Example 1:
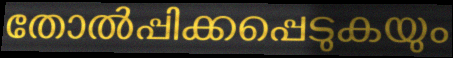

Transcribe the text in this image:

തോൽപ്പിക്കപ്പെടുകയും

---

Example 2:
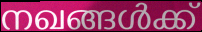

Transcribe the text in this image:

നഖങ്ങൾക്ക്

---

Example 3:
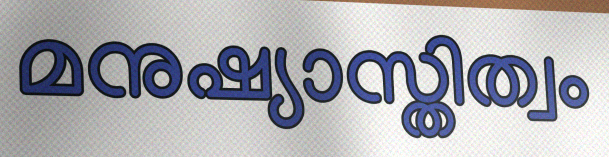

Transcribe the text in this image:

മനുഷ്യാസ്തിത്വം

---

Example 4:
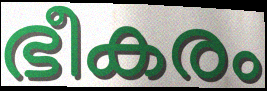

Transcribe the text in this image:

ഭീകരം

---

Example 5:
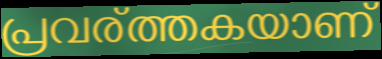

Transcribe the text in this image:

പ്രവര്ത്തകയാണ്